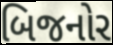
બિજનોર